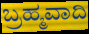
ಬ್ರಹ್ಮವಾದಿ